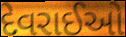
દેવરાઈઓ